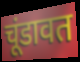
चूंडावत